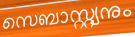
സെബാസ്റ്റ്യനും